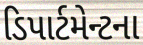
ડિપાર્ટમેન્ટના